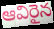
ఆవిరైన